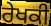
ਰੇਖਕੀ